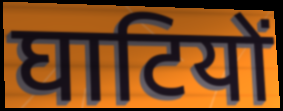
घाटियों